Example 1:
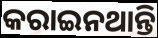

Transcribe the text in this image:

କରାଇନଥାନ୍ତି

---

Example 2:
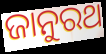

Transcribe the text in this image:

ଜାନୁରଥ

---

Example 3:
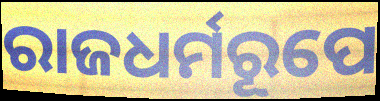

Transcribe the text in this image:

ରାଜଧର୍ମରୂପେ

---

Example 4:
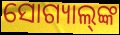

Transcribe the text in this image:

ସୋଗ୍ୟାଲ୍‌ଙ୍କ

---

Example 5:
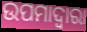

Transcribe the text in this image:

ଉପମାଦ୍ୱାରା